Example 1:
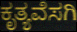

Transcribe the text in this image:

ಕೃತ್ಯವೆಸಗಿ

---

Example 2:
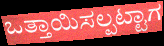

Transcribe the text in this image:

ಒತ್ತಾಯಿಸಲ್ಪಟ್ಟಾಗ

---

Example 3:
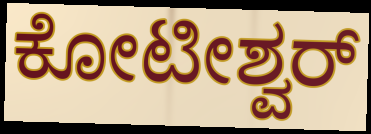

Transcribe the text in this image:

ಕೋಟೀಶ್ವರ್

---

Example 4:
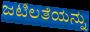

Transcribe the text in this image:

ಜಟಿಲತೆಯನ್ನು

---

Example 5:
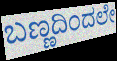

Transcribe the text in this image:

ಬಣ್ಣದಿಂದಲೇ